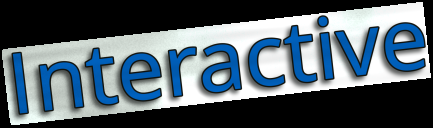
Interactive